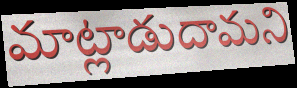
మాట్లాడుదామని